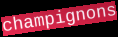
champignons